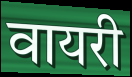
वायरी